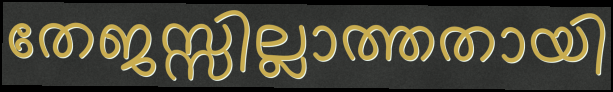
തേജസ്സില്ലാത്തതായി